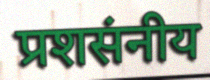
प्रशसंनीय